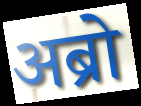
अब्रो